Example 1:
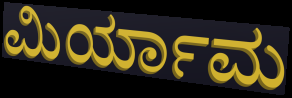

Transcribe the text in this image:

ಮಿರ್ಯಾಮ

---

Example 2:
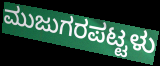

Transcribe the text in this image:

ಮುಜುಗರಪಟ್ಟಳು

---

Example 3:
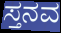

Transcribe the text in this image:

ಸ್ತನವ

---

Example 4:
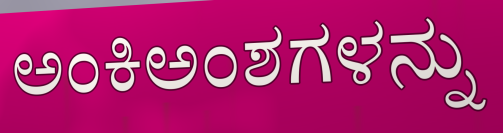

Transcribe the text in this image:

ಅಂಕಿಅಂಶಗಳನ್ನು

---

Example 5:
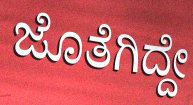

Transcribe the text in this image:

ಜೊತೆಗಿದ್ದೇ